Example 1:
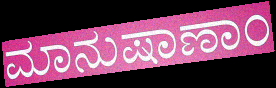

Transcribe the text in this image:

ಮಾನುಷಾಣಾಂ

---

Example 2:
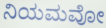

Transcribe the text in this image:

ನಿಯಮವೋ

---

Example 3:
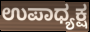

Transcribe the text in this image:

ಉಪಾಧ್ಯಕ್ಷ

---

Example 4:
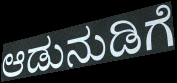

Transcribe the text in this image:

ಆಡುನುಡಿಗೆ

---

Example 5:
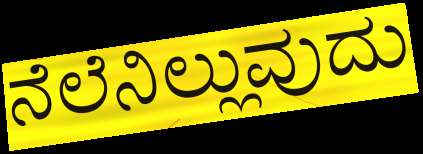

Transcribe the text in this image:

ನೆಲೆನಿಲ್ಲುವುದು